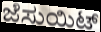
ಜೆಸುಯಿಟ್